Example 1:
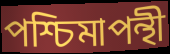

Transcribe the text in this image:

পশ্চিমাপন্থী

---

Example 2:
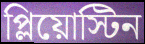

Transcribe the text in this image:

প্লিয়োস্টিন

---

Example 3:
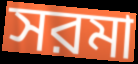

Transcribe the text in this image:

সরমা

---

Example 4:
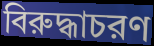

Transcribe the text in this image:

বিরুদ্ধাচরণ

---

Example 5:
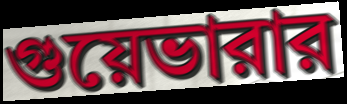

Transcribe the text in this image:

গুয়েভারার